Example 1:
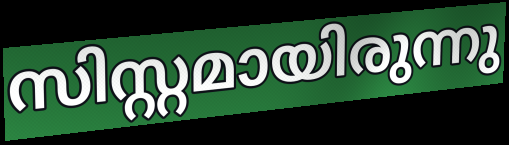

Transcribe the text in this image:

സിസ്റ്റമായിരുന്നു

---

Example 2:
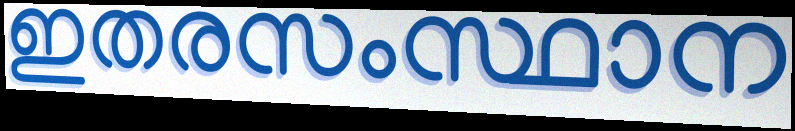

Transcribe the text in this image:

ഇതരസംസ്ഥാന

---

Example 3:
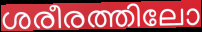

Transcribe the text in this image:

ശരീരത്തിലോ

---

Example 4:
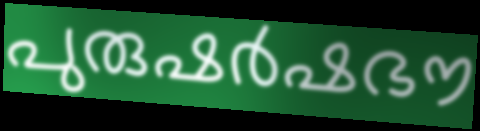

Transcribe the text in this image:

പുരുഷർഷഭൗ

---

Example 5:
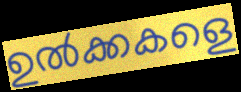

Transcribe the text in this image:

ഉൽക്കകളെ